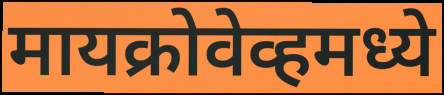
मायक्रोवेव्हमध्ये